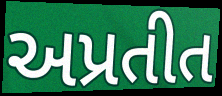
અપ્રતીત